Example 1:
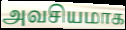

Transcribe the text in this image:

அவசியமாக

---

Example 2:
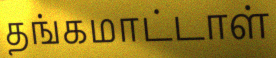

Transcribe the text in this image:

தங்கமாட்டாள்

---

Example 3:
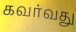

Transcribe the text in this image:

கவர்வது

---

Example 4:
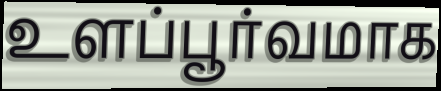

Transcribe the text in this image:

உளப்பூர்வமாக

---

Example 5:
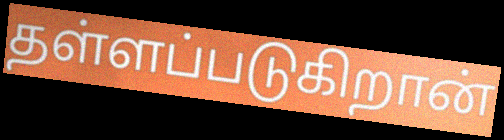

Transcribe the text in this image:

தள்ளப்படுகிறான்